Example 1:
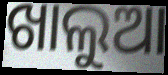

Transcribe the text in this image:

ଖାଲୁଆ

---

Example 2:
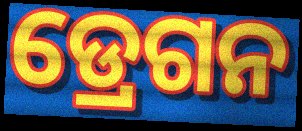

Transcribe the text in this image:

ଡ୍ରେଗନ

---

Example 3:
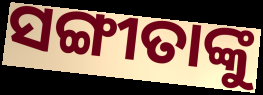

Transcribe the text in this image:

ସଙ୍ଗୀତାଙ୍କୁ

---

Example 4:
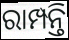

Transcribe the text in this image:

ରାମ୍ପନ୍ତି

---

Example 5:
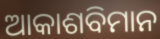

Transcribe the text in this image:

ଆକାଶବିମାନ